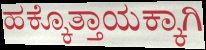
ಹಕ್ಕೊತ್ತಾಯಕ್ಕಾಗಿ